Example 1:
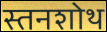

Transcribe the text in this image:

स्तनशोथ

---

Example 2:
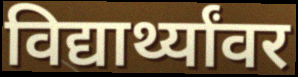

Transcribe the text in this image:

विद्यार्थ्यांवर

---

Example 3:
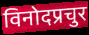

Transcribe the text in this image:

विनोदप्रचुर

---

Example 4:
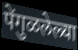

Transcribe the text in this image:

पेंगुळलेल्या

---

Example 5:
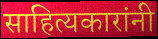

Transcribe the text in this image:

साहित्यकारांनी